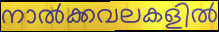
നാൽക്കവലകളിൽ